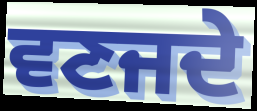
ਵਣਜਦੇ